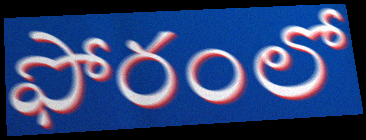
ఫోరంలో